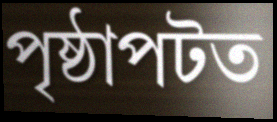
পৃষ্ঠাপটত